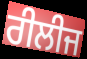
ਰੀਲੀਜ